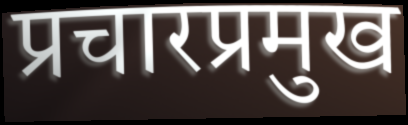
प्रचारप्रमुख